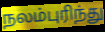
நலம்புரிந்து